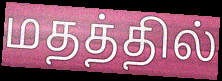
மதத்தில்